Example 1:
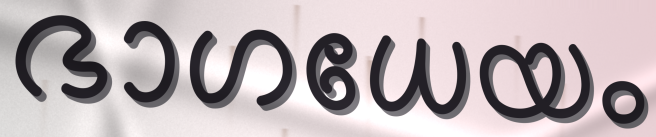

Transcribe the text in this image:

ഭാഗധേയം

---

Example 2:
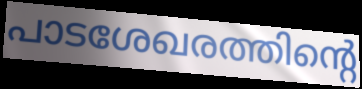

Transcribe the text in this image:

പാടശേഖരത്തിന്റെ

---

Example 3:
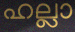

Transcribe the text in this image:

ഹല്ലാ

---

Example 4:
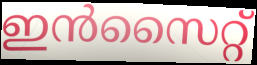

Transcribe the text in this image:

ഇൻസൈറ്റ്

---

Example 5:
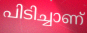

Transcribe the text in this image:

പിടിച്ചാണ്